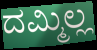
ದಮ್ಮಿಲ್ಲ